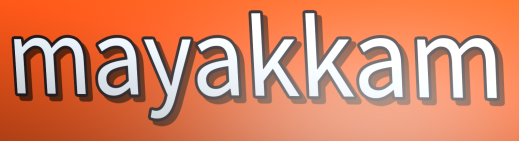
mayakkam